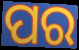
ପର